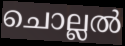
ചൊല്ലൽ